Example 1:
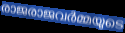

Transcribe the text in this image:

രാജരാജവർമ്മയുടെ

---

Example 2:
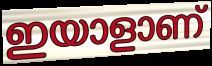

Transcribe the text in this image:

ഇയാളാണ്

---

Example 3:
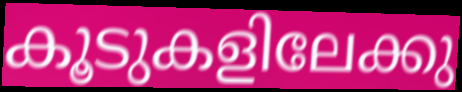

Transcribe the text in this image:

കൂടുകളിലേക്കു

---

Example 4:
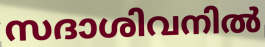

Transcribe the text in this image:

സദാശിവനിൽ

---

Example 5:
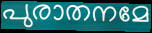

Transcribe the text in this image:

പുരാതനമേ